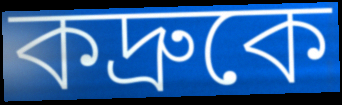
কদ্রুকে